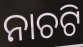
ନାଚଟି